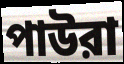
পাউরা